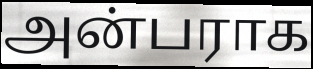
அன்பராக